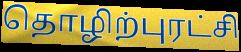
தொழிற்புரட்சி